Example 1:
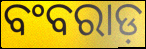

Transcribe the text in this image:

ବଂବରାଡ଼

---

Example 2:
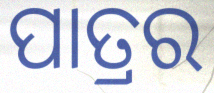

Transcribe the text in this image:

ପାତ୍ରର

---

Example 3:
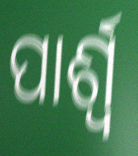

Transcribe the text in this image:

ପାର୍ଶ୍ୱ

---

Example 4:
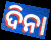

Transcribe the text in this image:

ଦିନା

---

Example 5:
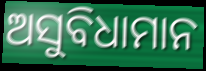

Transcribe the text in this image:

ଅସୁବିଧାମାନ